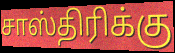
சாஸ்திரிக்கு